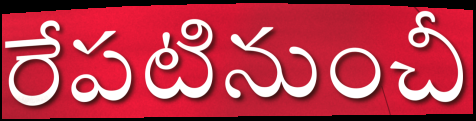
రేపటినుంచీ